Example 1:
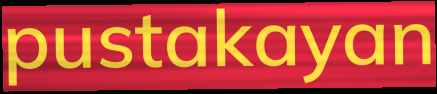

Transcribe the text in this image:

pustakayan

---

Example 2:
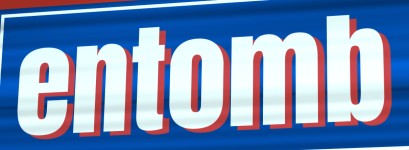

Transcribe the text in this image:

entomb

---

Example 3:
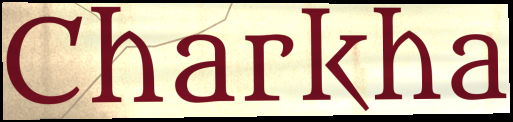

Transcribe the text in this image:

Charkha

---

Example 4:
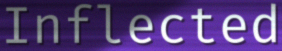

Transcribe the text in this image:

Inflected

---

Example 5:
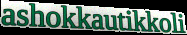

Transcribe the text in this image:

ashokkautikkoli